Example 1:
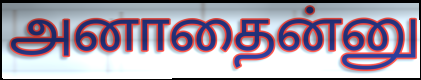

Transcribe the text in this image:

அனாதைன்னு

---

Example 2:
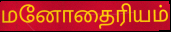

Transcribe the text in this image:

மனோதைரியம்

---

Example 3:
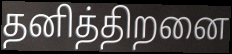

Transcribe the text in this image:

தனித்திறனை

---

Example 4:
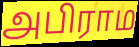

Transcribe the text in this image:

அபிராம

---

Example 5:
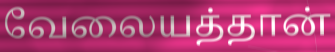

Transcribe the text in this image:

வேலையத்தான்